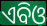
ଏବିଓ